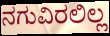
ನಗುವಿರಲಿಲ್ಲ